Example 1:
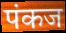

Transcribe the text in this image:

पंकज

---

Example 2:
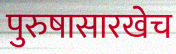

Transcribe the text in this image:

पुरुषासारखेच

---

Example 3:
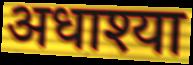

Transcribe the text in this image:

अधाश्या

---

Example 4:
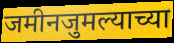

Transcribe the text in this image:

जमीनजुमल्याच्या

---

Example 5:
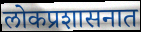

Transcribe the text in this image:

लोकप्रशासनात